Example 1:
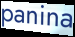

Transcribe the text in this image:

panina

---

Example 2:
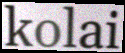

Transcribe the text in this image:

kolai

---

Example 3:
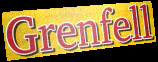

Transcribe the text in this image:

Grenfell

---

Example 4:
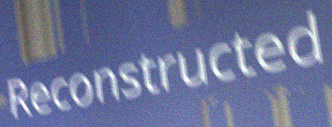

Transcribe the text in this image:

Reconstructed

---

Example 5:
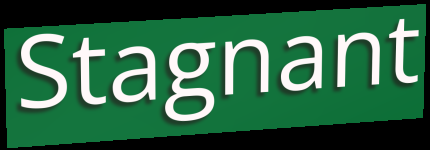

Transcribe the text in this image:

Stagnant